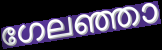
ഗേലഞ്ഞാ